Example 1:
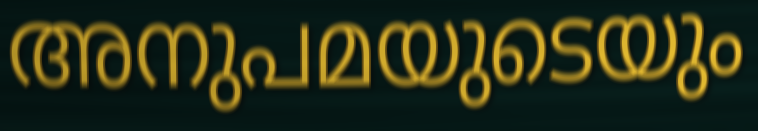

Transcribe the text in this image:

അനുപമയുടെയും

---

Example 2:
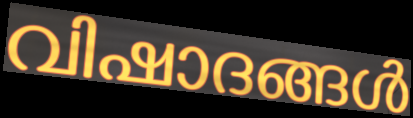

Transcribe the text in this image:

വിഷാദങ്ങൾ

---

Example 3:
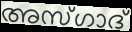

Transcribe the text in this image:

അസ്ഗാദ്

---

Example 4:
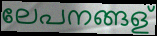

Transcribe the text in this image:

ലേപനങ്ങള്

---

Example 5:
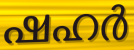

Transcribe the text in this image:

ഷഹർ